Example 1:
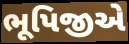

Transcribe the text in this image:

ભૂપિજીએ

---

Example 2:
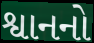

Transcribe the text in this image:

શ્વાનનો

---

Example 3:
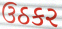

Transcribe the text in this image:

ઉઠકર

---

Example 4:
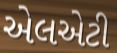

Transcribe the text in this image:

એલએટી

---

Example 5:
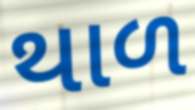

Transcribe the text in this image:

થાળ